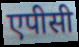
एपीसी